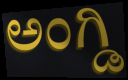
ಅಂಗ್ಡಿ